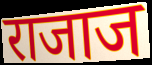
राजाज